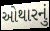
ઓથારનું